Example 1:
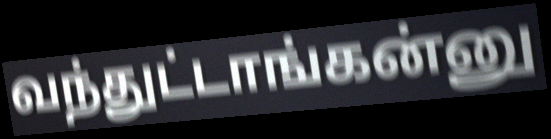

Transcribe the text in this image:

வந்துட்டாங்கன்னு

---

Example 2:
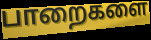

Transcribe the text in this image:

பாறைகளை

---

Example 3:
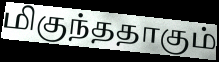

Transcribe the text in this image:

மிகுந்ததாகும்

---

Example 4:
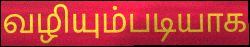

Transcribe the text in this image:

வழியும்படியாக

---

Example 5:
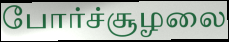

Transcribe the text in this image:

போர்ச்சூழலை